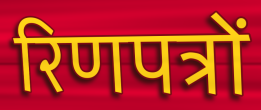
रिणपत्रों